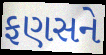
ફણસને